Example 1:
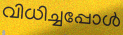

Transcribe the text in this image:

വിധിച്ചപ്പോൾ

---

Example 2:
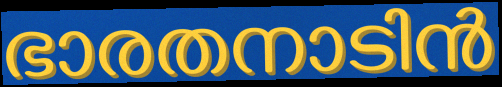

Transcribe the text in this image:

ഭാരതനാടിൻ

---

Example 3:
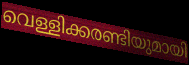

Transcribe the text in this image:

വെള്ളിക്കരണ്ടിയുമായി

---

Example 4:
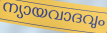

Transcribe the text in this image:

ന്യായവാദവും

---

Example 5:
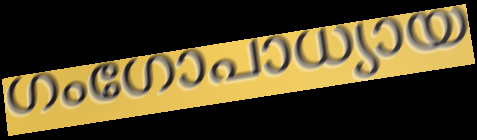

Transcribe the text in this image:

ഗംഗോപാധ്യായ